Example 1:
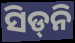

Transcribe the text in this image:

ସିଡ୍‍ନି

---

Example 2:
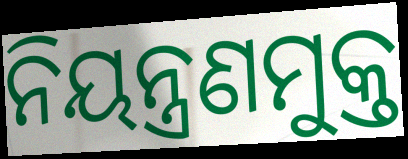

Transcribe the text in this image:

ନିୟନ୍ତ୍ରଣମୁକ୍ତ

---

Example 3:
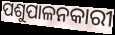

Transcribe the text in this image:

ପଶୁପାଳନକାରୀ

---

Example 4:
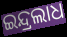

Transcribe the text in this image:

ଇନ୍ଦ୍ରଲାଧ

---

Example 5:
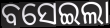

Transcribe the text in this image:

ବସେଇଲା